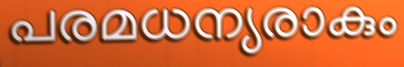
പരമധന്യരാകും